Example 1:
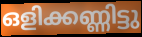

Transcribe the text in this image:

ഒളിക്കണ്ണിട്ടു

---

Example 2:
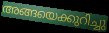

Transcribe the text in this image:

അങ്ങയെക്കുറിച്ചു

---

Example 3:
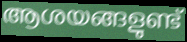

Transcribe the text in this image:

ആശയങ്ങളുണ്ട്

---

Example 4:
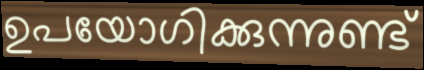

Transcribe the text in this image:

ഉപയോഗിക്കുന്നുണ്ട്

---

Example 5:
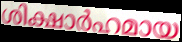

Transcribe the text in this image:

ശിക്ഷാർഹമായ